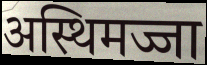
अस्थिमज्जा